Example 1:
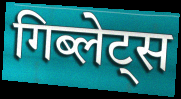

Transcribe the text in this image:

गिब्लेट्स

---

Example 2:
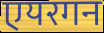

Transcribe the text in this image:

एयरगन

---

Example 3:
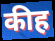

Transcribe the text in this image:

कीह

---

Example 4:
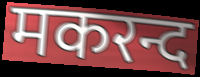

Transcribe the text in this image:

मकरन्द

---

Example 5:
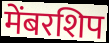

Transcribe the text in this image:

मेंबरशिप